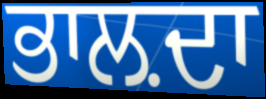
ਭਾਲ਼ਦਾ